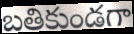
బతికుండగా